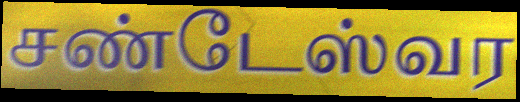
சண்டேஸ்வர